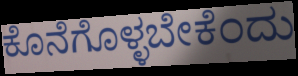
ಕೊನೆಗೊಳ್ಳಬೇಕೆಂದು